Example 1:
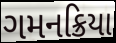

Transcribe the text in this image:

ગમનક્રિયા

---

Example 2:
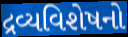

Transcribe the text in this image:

દ્રવ્યવિશેષનો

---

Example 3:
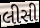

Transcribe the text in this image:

લીસી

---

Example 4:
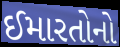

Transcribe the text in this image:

ઈમારતોનો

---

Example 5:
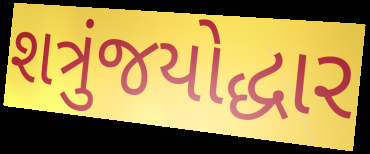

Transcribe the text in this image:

શત્રુંજયોદ્ધાર